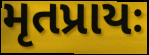
મૃતપ્રાયઃ